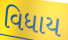
વિધાય